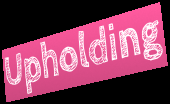
Upholding